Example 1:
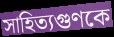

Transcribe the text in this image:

সাহিত্যগুণকে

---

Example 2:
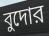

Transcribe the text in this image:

বুদোর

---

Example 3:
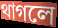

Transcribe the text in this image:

থাগলে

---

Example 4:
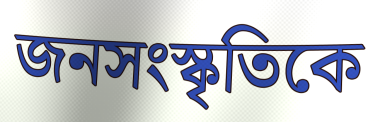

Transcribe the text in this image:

জনসংস্কৃতিকে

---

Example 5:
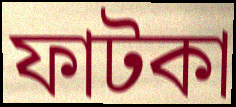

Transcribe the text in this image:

ফাটকা